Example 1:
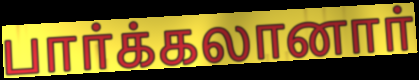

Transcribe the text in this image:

பார்க்கலானார்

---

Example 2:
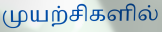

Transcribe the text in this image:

முயற்சிகளில்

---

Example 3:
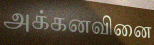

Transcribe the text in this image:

அக்கனவினை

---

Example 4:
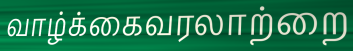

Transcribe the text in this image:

வாழ்க்கைவரலாற்றை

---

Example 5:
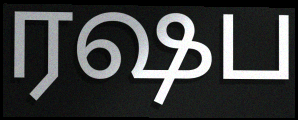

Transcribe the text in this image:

ரஷப